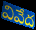
వివేద